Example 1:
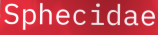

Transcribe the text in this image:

Sphecidae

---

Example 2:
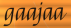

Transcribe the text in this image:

gaajaa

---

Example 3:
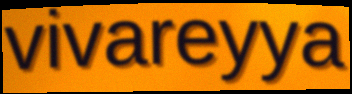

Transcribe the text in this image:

vivareyya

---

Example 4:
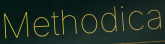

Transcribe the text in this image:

Methodica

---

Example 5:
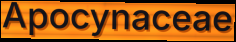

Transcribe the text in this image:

Apocynaceae